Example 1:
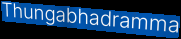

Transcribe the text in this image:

Thungabhadramma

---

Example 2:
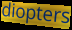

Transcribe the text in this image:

diopters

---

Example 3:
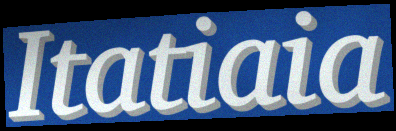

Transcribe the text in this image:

Itatiaia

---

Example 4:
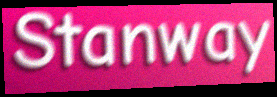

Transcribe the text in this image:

Stanway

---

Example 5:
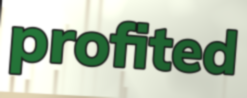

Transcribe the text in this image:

profited